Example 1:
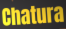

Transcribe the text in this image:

Chatura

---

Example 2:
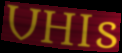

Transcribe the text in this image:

UHIs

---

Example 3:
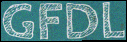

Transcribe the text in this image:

GFDL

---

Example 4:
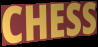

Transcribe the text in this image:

CHESS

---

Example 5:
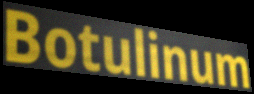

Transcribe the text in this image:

Botulinum